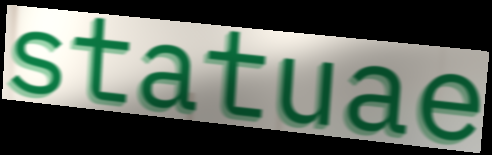
statuae